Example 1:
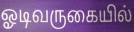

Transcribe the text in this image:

ஓடிவருகையில்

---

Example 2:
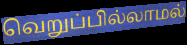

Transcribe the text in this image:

வெறுப்பில்லாமல்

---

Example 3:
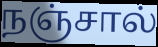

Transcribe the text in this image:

நஞ்சால்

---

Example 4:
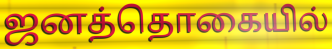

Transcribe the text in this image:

ஜனத்தொகையில்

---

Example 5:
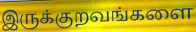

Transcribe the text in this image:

இருக்குறவங்களை